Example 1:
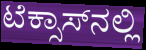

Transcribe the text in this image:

ಟೆಕ್ಸಾಸ್‌ನಲ್ಲಿ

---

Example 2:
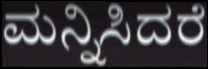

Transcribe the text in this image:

ಮನ್ನಿಸಿದರೆ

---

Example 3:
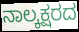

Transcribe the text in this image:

ನಾಲ್ಕಕ್ಷರದ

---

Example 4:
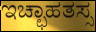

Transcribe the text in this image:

ಇಚ್ಛಾಹತಸ್ಸ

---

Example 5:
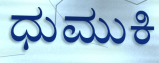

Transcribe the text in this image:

ಧುಮುಕಿ